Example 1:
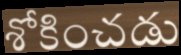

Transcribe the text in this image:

శోకించడు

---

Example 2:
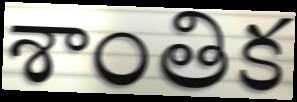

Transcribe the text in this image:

శాంతిక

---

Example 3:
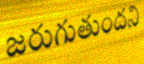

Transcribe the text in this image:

జరుగుతుందని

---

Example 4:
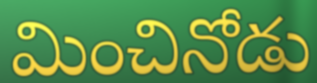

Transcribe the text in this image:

మించినోడు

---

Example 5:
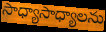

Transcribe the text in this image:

సాధ్యాసాధ్యాలను